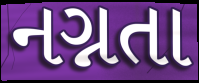
નગ્નતા